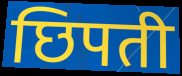
छिपती